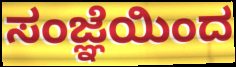
ಸಂಜ್ಞೆಯಿಂದ